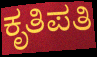
ಕೃತಿಪತಿ